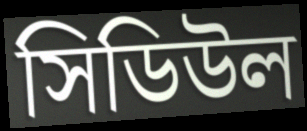
সিডিউল